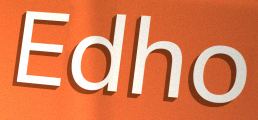
Edho